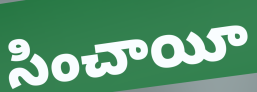
సించాయీ